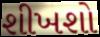
શીખશો